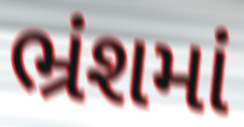
ભ્રંશમાં